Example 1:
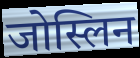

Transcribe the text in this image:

जोस्लिन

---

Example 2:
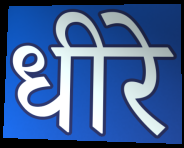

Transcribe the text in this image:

धीरे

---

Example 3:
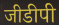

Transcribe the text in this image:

जीडीपी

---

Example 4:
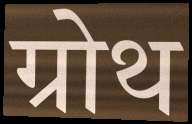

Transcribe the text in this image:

ग्रोथ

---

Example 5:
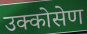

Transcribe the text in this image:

उक्कोसेण